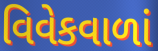
વિવેકવાળાં